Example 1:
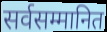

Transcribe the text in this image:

सर्वसम्मानित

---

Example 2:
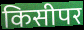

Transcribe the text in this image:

किसीपर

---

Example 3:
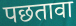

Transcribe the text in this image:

पछतावा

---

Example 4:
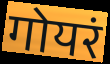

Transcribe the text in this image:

गोयरं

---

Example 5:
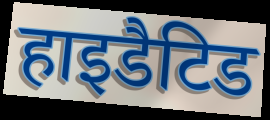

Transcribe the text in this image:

हाइडैटिड